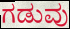
ಗಡುವು